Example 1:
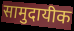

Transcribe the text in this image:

सामुदायीक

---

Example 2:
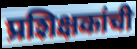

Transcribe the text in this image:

प्रशिक्षकांची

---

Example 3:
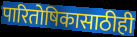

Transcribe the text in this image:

पारितोषिकासाठीही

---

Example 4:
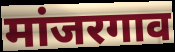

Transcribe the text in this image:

मांजरगाव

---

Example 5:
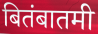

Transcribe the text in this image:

बितंबातमी